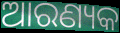
ଆରଣ୍ୟକ